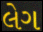
લેગ